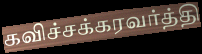
கவிச்சக்கரவர்த்தி